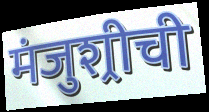
मंजुश्रीची